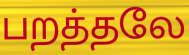
பறத்தலே